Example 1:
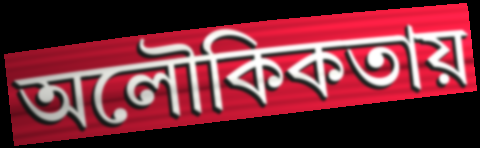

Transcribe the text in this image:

অলৌকিকতায়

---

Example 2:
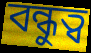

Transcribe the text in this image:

বন্ধুত্ব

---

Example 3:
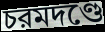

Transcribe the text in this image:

চরমদণ্ডে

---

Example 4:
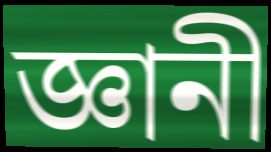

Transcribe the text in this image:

জ্ঞানী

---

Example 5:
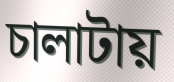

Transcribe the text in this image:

চালাটায়